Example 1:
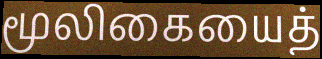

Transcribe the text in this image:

மூலிகையைத்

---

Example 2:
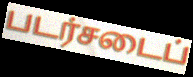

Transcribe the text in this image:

படர்சடைப்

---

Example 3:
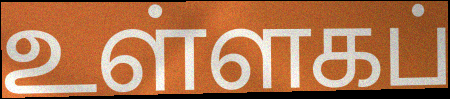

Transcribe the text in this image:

உள்ளகப்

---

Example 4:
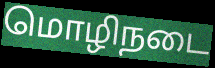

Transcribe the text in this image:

மொழிநடை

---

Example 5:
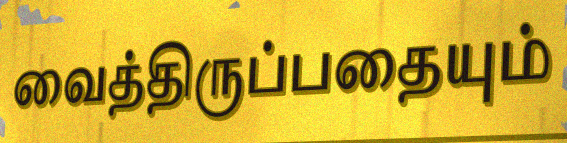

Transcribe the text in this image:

வைத்திருப்பதையும்